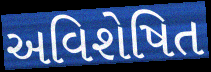
અવિશેષિત